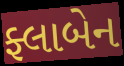
ફ્લાબેન